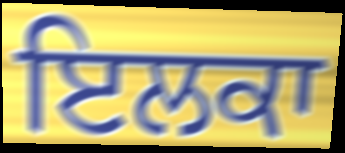
ਇਲਕਾ